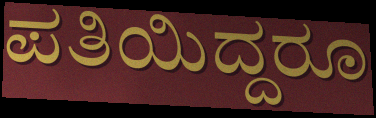
ಪತಿಯಿದ್ದರೂ